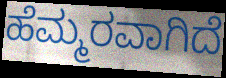
ಹೆಮ್ಮರವಾಗಿದೆ